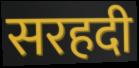
सरहदी